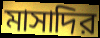
মাসাদির